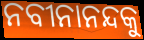
ନବୀନାନନ୍ଦକୁ